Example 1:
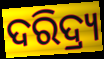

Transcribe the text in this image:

ଦରିଦ୍ର୍ୟ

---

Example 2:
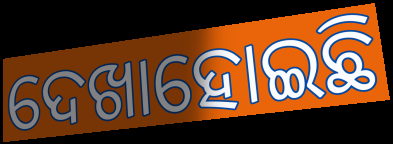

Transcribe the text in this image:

ଦେଖାହୋଇଛି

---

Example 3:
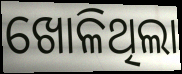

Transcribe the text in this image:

ଖୋଳିଥିଲା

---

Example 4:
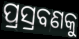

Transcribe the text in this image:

ପ୍ରସ୍ରବଣକୁ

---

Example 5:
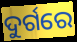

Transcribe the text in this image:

ଦୁର୍ଗରେ